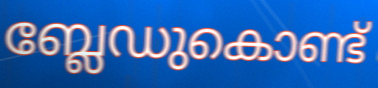
ബ്ലേഡുകൊണ്ട്